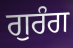
ਗੁਰੰਗ